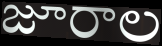
జూరాల